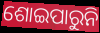
ଶୋଇପାରୁନି